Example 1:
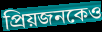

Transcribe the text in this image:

প্রিয়জনকেও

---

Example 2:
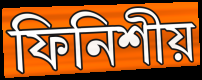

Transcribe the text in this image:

ফিনিশীয়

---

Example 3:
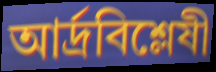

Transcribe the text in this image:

আর্দ্রবিশ্লেষী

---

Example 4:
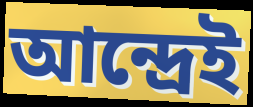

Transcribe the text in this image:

আন্দ্রেই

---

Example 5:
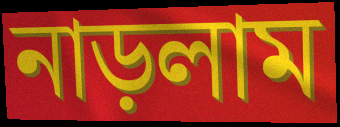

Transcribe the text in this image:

নাড়লাম